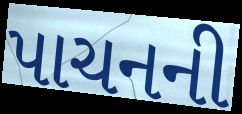
પાચનની